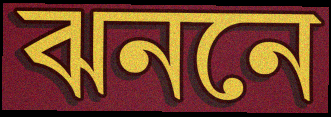
ঝননে